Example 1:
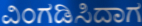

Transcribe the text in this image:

ವಿಂಗಡಿಸಿದಾಗ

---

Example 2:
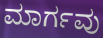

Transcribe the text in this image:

ಮಾರ್ಗವು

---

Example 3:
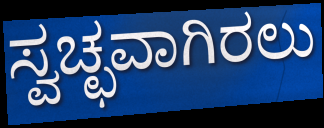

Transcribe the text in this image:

ಸ್ವಚ್ಛವಾಗಿರಲು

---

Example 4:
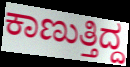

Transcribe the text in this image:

ಕಾಣುತ್ತಿದ್ದ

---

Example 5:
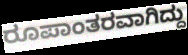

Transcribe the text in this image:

ರೂಪಾಂತರವಾಗಿದ್ದು